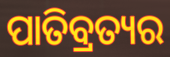
ପାତିବ୍ରତ୍ୟର